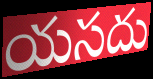
యసదు